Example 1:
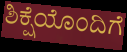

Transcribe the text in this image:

ಶಿಕ್ಷೆಯೊಂದಿಗೆ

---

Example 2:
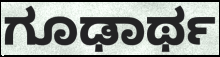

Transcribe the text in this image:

ಗೂಢಾರ್ಥ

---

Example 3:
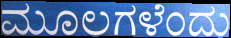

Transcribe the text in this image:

ಮೂಲಗಳೆಂದು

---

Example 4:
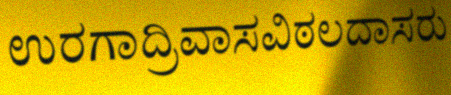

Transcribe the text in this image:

ಉರಗಾದ್ರಿವಾಸವಿಠಲದಾಸರು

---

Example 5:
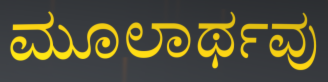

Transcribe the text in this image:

ಮೂಲಾರ್ಥವು